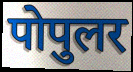
पोपुलर